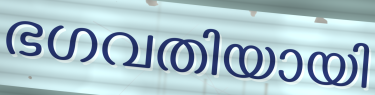
ഭഗവതിയായി